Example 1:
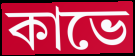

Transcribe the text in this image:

কাভে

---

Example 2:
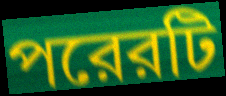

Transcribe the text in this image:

পরেরটি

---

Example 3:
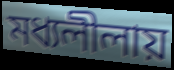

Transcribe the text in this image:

মধ্যলীলায়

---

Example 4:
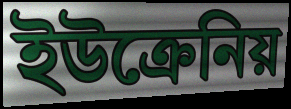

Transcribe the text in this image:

ইউক্রেনিয়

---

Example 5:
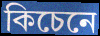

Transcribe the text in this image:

কিচেনে